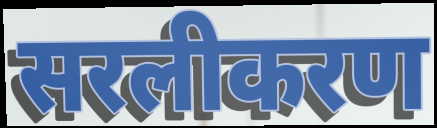
सरलीकरण